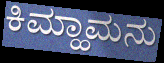
ಕಿಮ್ಹಾಮನು